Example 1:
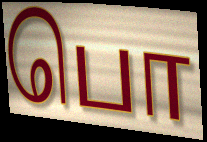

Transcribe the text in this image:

பொ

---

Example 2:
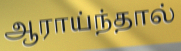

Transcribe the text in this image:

ஆராய்ந்தால்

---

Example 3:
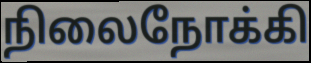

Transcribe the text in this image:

நிலைநோக்கி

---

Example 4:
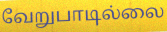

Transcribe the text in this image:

வேறுபாடில்லை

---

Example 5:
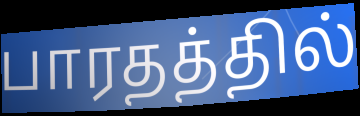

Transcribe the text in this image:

பாரதத்தில்